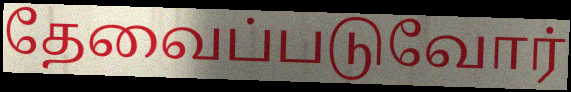
தேவைப்படுவோர்